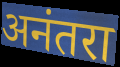
अनंतरा